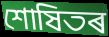
শোষিতৰ